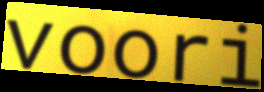
voori